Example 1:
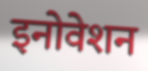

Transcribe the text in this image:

इनोवेशन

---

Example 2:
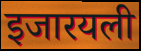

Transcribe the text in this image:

इजारयली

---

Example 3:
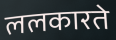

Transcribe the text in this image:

ललकारते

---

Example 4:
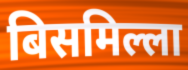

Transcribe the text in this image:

बिसमिल्ला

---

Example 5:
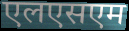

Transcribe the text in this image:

एलएसएम